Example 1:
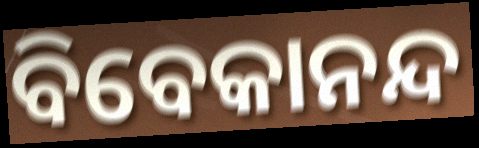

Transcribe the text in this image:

ବିବେକାନନ୍ଦ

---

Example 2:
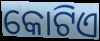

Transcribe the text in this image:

କୋଟିଏ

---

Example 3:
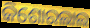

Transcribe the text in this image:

କିଶୋରଲାଲ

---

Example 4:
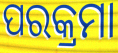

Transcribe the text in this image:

ପରକ୍ରମା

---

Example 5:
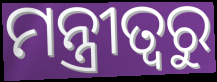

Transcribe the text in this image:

ମନ୍ତ୍ରୀତ୍ୱରୁ